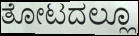
ತೋಟದಲ್ಲೂ